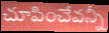
చూపించేవన్నీ